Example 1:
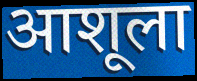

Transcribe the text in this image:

आशूला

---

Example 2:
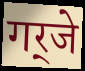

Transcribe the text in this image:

गर्जे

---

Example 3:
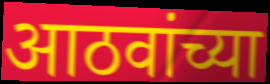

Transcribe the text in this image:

आठवांच्या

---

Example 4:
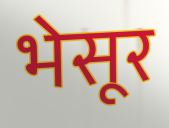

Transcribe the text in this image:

भेसूर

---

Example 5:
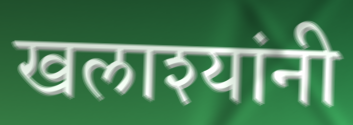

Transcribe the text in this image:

खलाश्यांनी